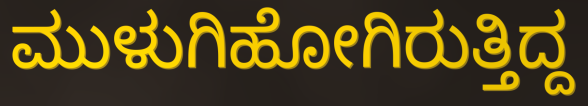
ಮುಳುಗಿಹೋಗಿರುತ್ತಿದ್ದ